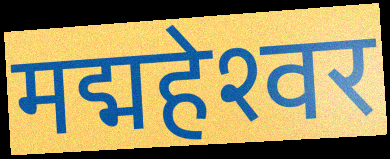
मद्महेश्वर